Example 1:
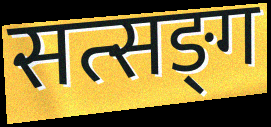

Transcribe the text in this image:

सत्सङ्ग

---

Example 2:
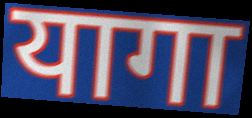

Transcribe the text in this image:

यागा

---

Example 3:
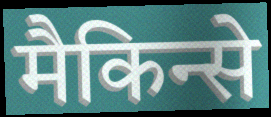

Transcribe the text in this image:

मैकिन्से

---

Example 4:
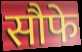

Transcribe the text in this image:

सौफे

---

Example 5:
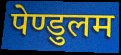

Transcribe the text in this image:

पेण्डुलम